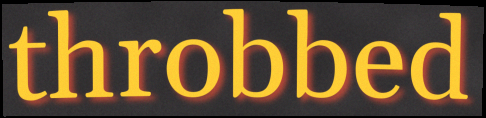
throbbed